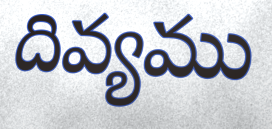
దివ్యము